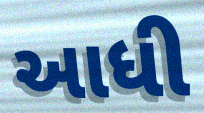
આધી